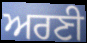
ਅਰਣੀ